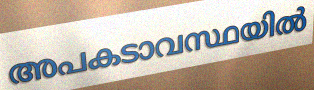
അപകടാവസ്ഥയിൽ